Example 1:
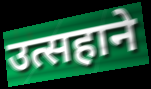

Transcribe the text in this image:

उत्सहाने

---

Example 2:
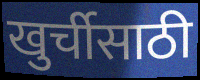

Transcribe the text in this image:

खुर्चीसाठी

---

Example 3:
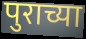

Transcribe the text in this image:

पुराच्या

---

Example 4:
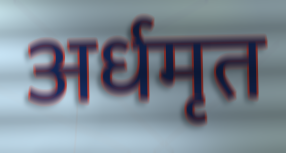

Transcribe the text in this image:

अर्धमृत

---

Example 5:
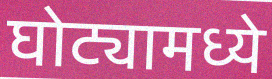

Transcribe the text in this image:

घोट्यामध्ये